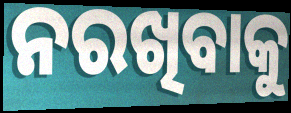
ନରଖିବାକୁ